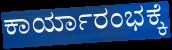
ಕಾರ್ಯಾರಂಭಕ್ಕೆ